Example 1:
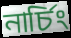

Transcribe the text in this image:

নাৰ্চিং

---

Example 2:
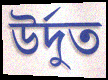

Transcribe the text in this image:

উৰ্দুত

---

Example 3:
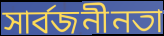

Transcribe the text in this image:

সাৰ্বজনীনতা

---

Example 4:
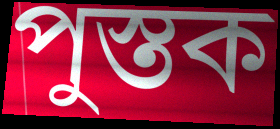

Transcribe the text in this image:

পুস্তক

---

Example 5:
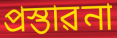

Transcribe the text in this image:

প্ৰস্তাৱনা